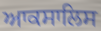
ਆਕਸਾਲਿਸ